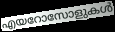
എയറോസോളുകൾ